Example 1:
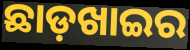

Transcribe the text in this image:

ଛାଡ଼ଖାଇର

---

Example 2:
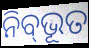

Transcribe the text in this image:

ନିବ୍‌ଭୂତ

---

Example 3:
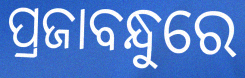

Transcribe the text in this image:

ପ୍ରଜାବନ୍ଧୁରେ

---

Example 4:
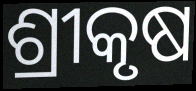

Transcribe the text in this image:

ଶ୍ରୀକୃଷ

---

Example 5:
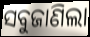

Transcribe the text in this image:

ସବୁଜାଣିଲା